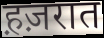
ह़ज़रात